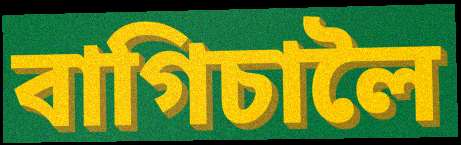
বাগিচালৈ